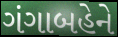
ગંગાબહેને